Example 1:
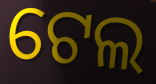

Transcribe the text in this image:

ଟେଲ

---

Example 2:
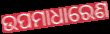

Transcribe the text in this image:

ଉପମାଧାରେଣ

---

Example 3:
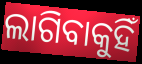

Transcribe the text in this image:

ଲାଗିବାକୁହିଁ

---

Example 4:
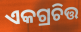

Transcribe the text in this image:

ଏକଗ୍ରଚିତ୍ତ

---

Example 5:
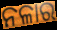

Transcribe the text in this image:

ନଳାର